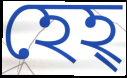
হেহ্